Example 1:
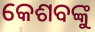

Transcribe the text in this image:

କେଶବଙ୍କୁ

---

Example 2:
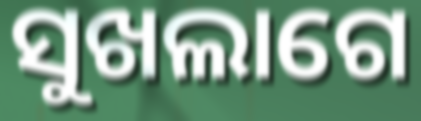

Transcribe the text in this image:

ସୁଖଲାଗେ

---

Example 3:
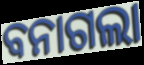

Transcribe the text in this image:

ବନାଗଲା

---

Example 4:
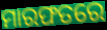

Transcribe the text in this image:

ମାରଫତରେ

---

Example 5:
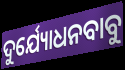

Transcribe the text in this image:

ଦୁର୍ଯ୍ୟୋଧନବାବୁ